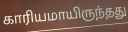
காரியமாயிருந்தது